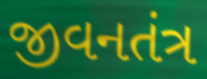
જીવનતંત્ર